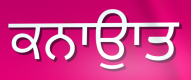
ਕਨਾਉਾਤ